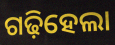
ଗଢ଼ିହେଲା